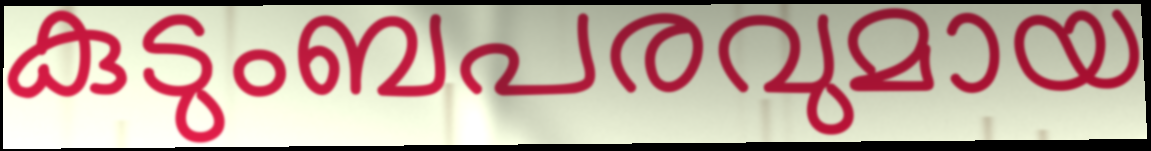
കുടുംബപരവുമായ